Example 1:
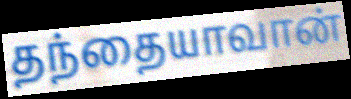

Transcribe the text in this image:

தந்தையாவான்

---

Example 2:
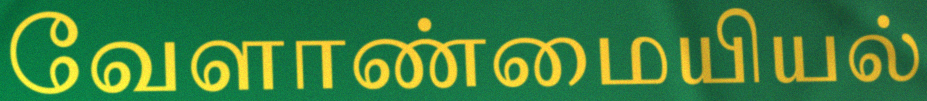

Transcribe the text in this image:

வேளாண்மையியல்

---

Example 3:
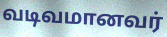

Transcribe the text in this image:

வடிவமானவர்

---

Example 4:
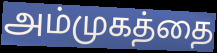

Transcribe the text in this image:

அம்முகத்தை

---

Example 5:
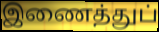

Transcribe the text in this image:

இணைத்துப்